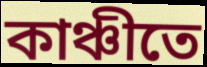
কাঞ্চীতে